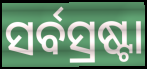
ସର୍ବସ୍ରଷ୍ଟା